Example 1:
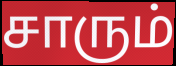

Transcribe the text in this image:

சாரும்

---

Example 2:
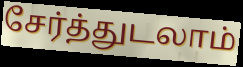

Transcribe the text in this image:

சேர்த்துடலாம்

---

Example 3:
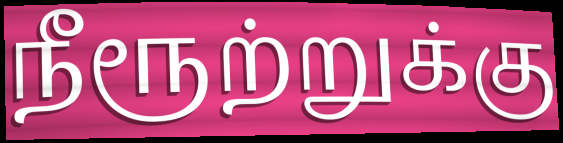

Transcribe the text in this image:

நீரூற்றுக்கு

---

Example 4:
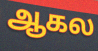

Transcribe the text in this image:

ஆகல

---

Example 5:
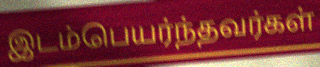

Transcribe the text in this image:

இடம்பெயர்ந்தவர்கள்